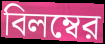
বিলম্বের